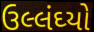
ઉલ્લંઘ્યો